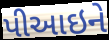
પીઆઇને